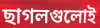
ছাগলগুলোই